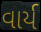
વાર્ય